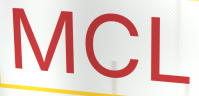
MCL